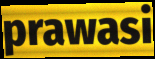
prawasi